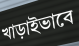
খাড়াইভাবে